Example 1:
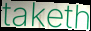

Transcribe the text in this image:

taketh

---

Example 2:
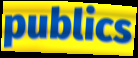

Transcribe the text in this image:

publics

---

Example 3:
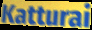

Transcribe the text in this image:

Katturai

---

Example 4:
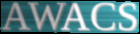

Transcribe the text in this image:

AWACS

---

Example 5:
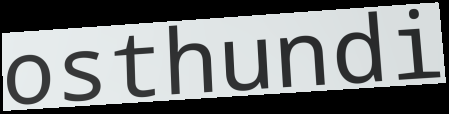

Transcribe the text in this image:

osthundi